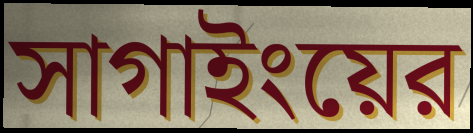
সাগাইংয়ের